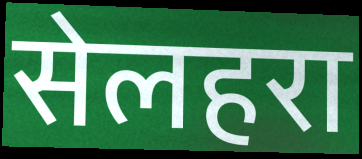
सेलहरा